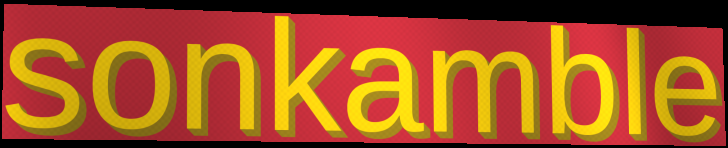
sonkamble